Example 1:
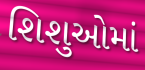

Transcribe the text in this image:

શિશુઓમાં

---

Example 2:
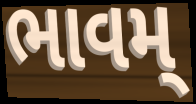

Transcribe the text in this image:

ભાવમ્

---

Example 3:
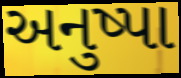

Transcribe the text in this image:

અનુષ્પા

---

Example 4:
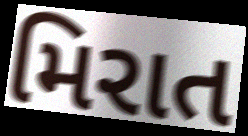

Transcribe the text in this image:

મિરાત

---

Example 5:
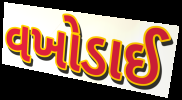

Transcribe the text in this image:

વખોડાઈ